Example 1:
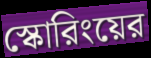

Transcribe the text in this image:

স্কোরিংয়ের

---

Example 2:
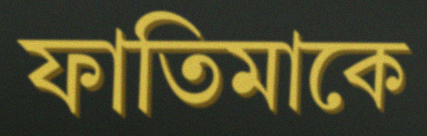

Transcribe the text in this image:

ফাতিমাকে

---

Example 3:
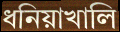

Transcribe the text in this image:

ধনিয়াখালি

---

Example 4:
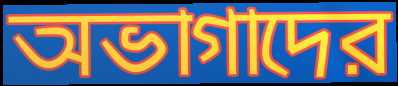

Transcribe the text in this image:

অভাগাদের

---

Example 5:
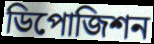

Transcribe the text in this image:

ডিপোজিশন